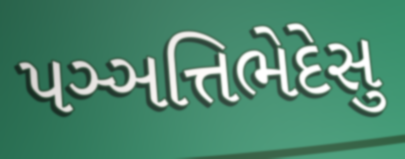
પઞ્ઞત્તિભેદેસુ